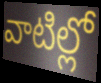
వాటిల్లో